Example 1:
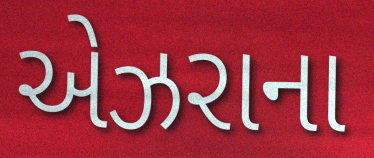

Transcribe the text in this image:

એઝરાના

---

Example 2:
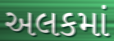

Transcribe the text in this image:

અલકમાં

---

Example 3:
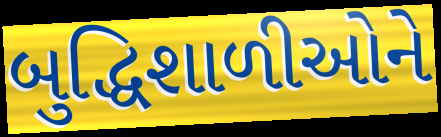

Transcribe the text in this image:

બુદ્ધિશાળીઓને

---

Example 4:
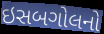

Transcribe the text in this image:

ઇસબગોલનો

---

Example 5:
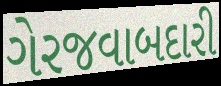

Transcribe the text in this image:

ગેરજવાબદારી